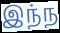
இந்ந